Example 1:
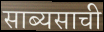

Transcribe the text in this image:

साब्यसाची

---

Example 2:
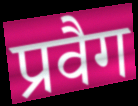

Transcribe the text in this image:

प्रवैग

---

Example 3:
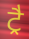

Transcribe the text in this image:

ट्रै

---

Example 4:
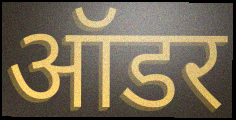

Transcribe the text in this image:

ऑडर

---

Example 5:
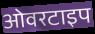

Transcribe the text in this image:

ओवरटाइप